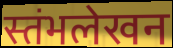
स्तंभलेखन